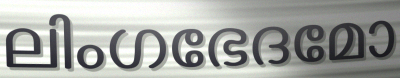
ലിംഗഭേദമോ